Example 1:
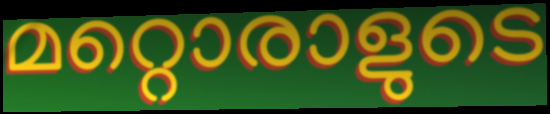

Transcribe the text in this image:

മറ്റൊരാളുടെ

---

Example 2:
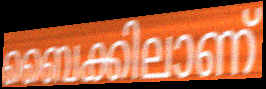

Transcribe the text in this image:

ബൈക്കിലാണ്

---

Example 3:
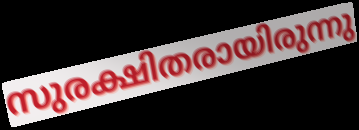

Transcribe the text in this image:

സുരക്ഷിതരായിരുന്നു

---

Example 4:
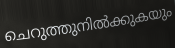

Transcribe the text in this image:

ചെറുത്തുനിൽക്കുകയും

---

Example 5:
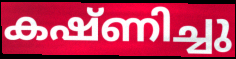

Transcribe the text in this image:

കഷ്ണിച്ചു